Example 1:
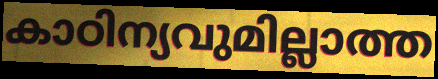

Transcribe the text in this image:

കാഠിന്യവുമില്ലാത്ത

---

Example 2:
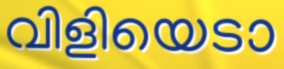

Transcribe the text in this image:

വിളിയെടാ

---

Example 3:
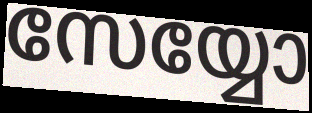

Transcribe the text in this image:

സേയ്യോ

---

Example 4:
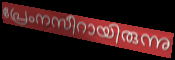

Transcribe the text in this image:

പ്രേംനസീറായിരുന്നു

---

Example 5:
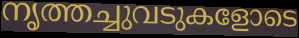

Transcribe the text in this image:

നൃത്തച്ചുവടുകളോടെ